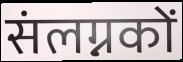
संलग्नकों